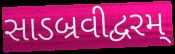
સાડબ્રવીદ્વરમ્